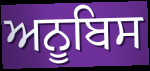
ਅਨੂਬਿਸ